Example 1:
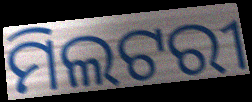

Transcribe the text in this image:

ମିଲଟରୀ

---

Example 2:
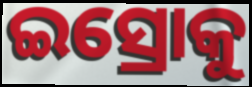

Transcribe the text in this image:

ଇସ୍ରୋକୁ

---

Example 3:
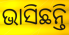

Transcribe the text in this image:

ଭାସିଛନ୍ତି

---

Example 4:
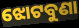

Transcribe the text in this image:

ଝୋଟବୁଣା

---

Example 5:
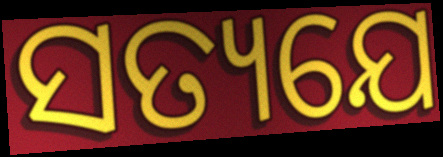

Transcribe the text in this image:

ସତ୍ୟଯେ